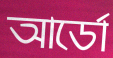
আর্ডো